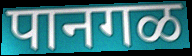
पानगळ